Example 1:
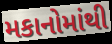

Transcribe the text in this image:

મકાનોમાંથી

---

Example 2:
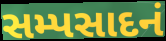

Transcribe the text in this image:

સમ્પસાદનં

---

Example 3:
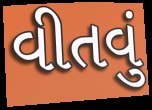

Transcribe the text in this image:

વીતવું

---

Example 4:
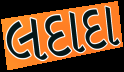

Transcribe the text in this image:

લદાદા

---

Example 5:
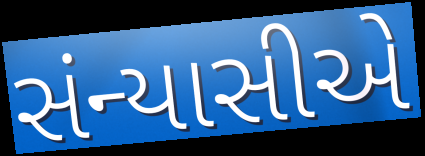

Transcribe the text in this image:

સંન્યાસીએ